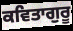
ਕਵਿਤਾਗੁਰੂ